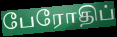
பேரோதிப்